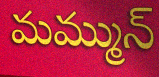
మమ్మున్